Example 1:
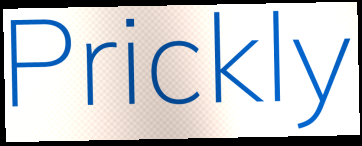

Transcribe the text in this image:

Prickly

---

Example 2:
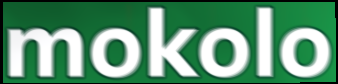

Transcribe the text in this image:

mokolo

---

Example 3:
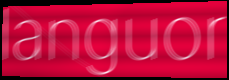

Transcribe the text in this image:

languor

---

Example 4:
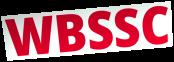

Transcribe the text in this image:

WBSSC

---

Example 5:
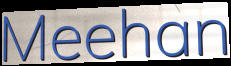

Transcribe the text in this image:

Meehan